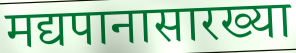
मद्यपानासारख्या